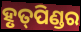
ହୃତ୍‌ପିଣ୍ଡର